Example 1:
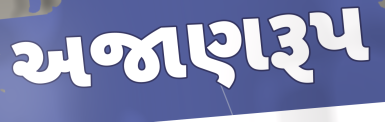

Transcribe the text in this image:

અજાણરૂપ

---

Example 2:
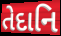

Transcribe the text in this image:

તેદાનિ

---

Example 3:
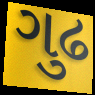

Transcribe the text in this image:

ગુઢ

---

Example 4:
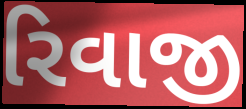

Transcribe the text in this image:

રિવાજી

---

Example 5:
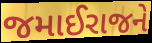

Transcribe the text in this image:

જમાઈરાજને